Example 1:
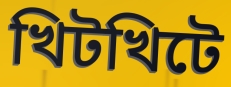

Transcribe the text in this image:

খিটখিটে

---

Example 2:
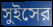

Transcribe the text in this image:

সুইসের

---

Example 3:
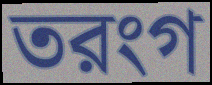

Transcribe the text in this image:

তরংগ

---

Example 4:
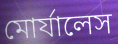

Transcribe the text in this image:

মোর্যালেস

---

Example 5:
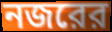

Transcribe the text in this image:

নজরের